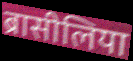
ब्रासीलिया